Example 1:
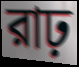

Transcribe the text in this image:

রাঢ়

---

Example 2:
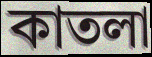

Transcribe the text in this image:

কাতলা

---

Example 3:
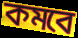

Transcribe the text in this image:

কমবে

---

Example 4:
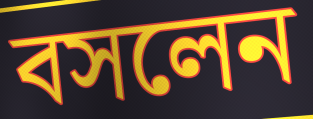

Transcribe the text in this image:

বসলেন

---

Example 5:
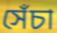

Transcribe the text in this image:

সেঁচা